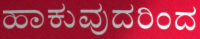
ಹಾಕುವುದರಿಂದ